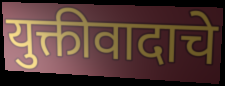
युक्तीवादाचे